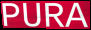
PURA